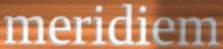
meridiem